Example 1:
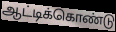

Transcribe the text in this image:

ஆட்டிக்கொண்டு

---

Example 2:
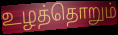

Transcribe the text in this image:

உழத்தொறும்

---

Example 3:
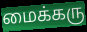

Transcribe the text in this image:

மைக்கரு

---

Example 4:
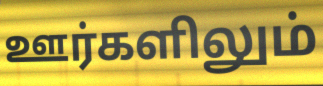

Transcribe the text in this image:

ஊர்களிலும்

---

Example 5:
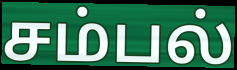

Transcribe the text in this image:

சம்பல்